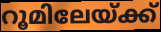
റൂമിലേയ്ക്ക്